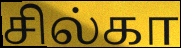
சில்கா